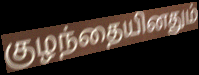
குழந்தையினதும்